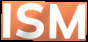
ISM